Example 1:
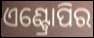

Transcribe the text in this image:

ଏଣ୍ଟ୍ରୋପିର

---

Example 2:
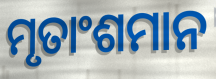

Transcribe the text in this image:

ମୃତାଂଶମାନ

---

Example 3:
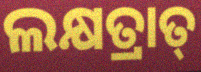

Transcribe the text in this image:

ଲକ୍ଷତ୍ରାତ୍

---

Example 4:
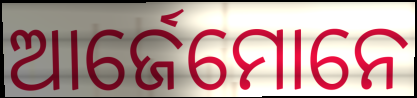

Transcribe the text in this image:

ଆର୍ଜେମୋନେ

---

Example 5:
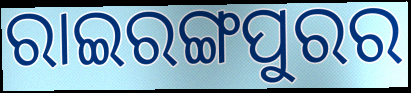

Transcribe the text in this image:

ରାଇରଙ୍ଗପୁରର